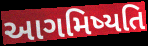
આગમિષ્યતિ